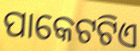
ପାକେଟଟିଏ